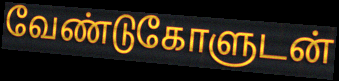
வேண்டுகோளுடன்